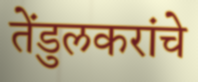
तेंडुलकरांचे